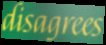
disagrees